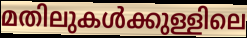
മതിലുകൾക്കുള്ളിലെ